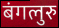
बंगलुरु